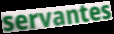
servantes